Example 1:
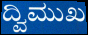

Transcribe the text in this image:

ದ್ವಿಮುಖ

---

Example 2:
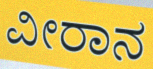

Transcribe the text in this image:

ವೀರಾನ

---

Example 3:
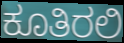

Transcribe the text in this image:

ಕೂತಿರಲಿ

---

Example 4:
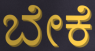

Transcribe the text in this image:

ಬೇಕೆ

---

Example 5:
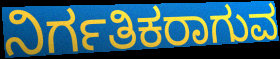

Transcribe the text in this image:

ನಿರ್ಗತಿಕರಾಗುವ